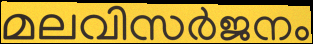
മലവിസർജനം